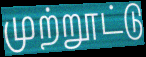
முற்றூட்டு